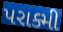
પરાક્મી